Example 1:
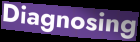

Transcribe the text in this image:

Diagnosing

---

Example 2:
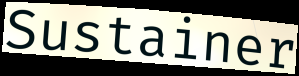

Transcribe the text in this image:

Sustainer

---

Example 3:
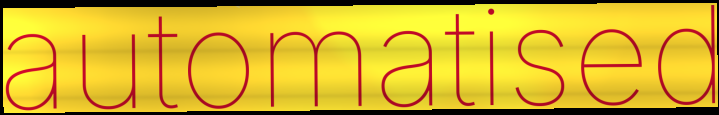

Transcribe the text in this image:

automatised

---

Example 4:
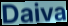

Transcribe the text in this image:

Daiva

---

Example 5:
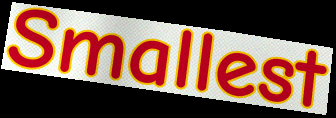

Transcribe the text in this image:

Smallest